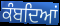
ਕੰਬਦਿਆਂ